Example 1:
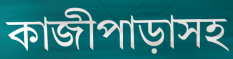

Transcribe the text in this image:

কাজীপাড়াসহ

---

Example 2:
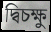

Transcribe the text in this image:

দ্বিচক্ষু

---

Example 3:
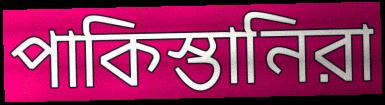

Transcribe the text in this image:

পাকিস্তানিরা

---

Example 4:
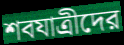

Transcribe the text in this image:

শবযাত্রীদের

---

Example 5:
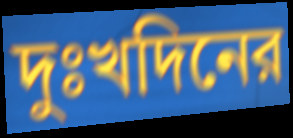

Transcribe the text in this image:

দুঃখদিনের